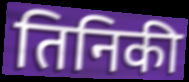
तिनिकी